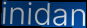
inidan